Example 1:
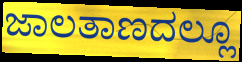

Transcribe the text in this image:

ಜಾಲತಾಣದಲ್ಲೂ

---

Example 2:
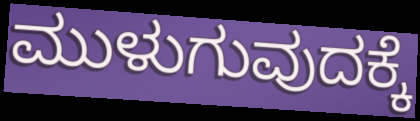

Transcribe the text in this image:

ಮುಳುಗುವುದಕ್ಕೆ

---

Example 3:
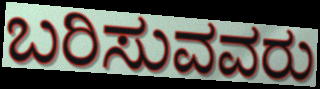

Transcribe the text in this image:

ಬರಿಸುವವರು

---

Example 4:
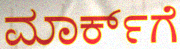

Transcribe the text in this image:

ಮಾರ್ಕ್‌ಗೆ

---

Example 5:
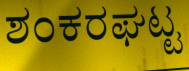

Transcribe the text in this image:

ಶಂಕರಘಟ್ಟ